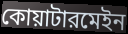
কোয়াটারমেইন